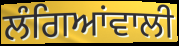
ਲੰਗਿਆਂਵਾਲੀ